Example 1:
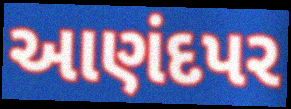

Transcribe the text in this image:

આણંદપર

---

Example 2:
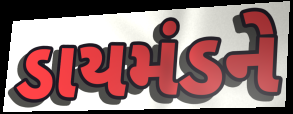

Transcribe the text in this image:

ડાયમંડને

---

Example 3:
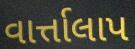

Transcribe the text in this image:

વાર્ત્તાલાપ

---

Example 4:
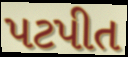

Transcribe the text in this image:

પટપીત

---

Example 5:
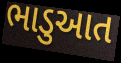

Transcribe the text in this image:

ભાડુઆત